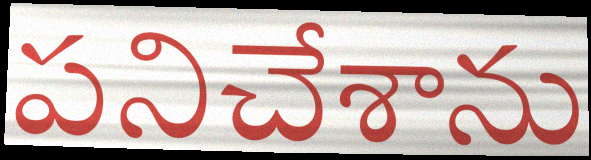
పనిచేశాను